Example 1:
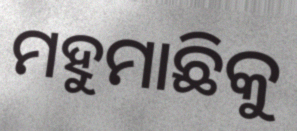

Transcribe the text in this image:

ମହୁମାଛିକୁ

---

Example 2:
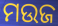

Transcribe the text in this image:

ମଉଜ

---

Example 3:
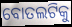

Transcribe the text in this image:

ବୋତଲଟିକୁ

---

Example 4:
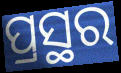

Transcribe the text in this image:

ପ୍ରସ୍ଥର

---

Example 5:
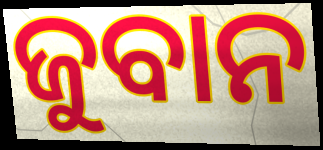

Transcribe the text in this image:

ଜୁବାନ